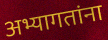
अभ्यागतांना